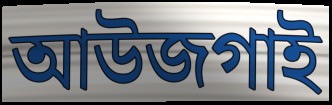
আউজগাই